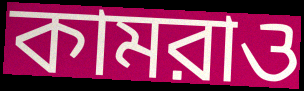
কামরাও